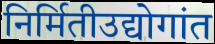
निर्मितीउद्योगांत